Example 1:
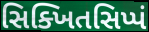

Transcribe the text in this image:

સિક્ખિતસિપ્પં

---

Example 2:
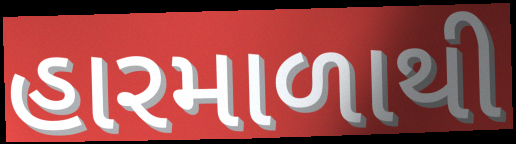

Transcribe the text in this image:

હારમાળાથી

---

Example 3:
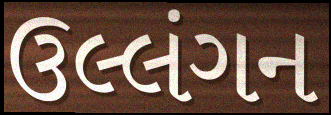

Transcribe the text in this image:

ઉલ્લંગન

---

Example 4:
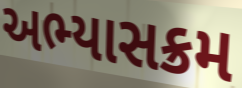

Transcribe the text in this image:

અભ્યાસક્રમ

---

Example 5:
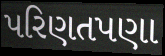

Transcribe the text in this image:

પરિણતપણા